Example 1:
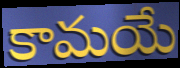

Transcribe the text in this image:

కామయే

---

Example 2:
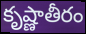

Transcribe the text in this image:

కృష్ణాతీరం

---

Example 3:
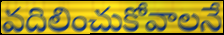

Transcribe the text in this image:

వదిలించుకోవాలనే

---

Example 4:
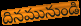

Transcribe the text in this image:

దినమునుండి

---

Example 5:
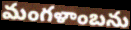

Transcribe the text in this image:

మంగళాంబను